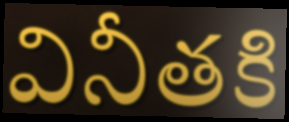
వినీతకి